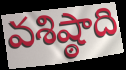
వశిష్ఠాది